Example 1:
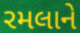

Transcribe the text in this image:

રમલાને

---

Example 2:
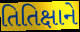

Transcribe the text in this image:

તિતિક્ષાને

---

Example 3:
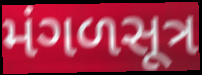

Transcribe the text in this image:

મંગળસૂત્ર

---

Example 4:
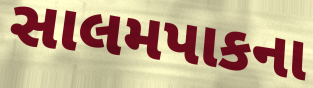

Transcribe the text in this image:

સાલમપાકના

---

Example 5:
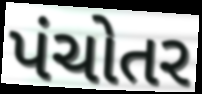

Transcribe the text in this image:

પંચોતર